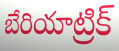
బేరియాట్రిక్